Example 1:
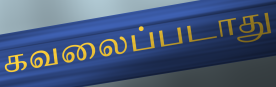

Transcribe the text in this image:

கவலைப்படாது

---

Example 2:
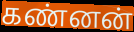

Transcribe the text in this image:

கண்னன்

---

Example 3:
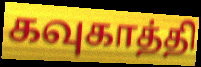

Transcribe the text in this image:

கவுகாத்தி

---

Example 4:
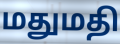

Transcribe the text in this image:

மதுமதி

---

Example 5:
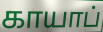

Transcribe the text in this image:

காயாப்